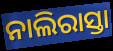
ନାଲିରାସ୍ତା